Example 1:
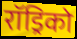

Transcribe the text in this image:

रॉड्रिको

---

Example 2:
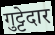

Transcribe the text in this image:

गुट्टेदार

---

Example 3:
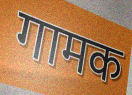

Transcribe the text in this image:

गामक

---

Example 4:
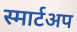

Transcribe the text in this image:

स्मार्टअप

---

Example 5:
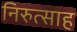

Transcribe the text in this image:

निरुत्साह